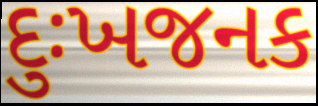
દુઃખજનક